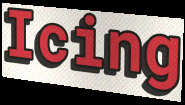
Icing